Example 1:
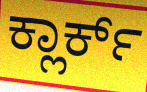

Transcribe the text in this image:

ಕ್ಲಾರ್ಕ್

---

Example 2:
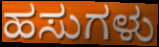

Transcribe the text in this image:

ಹಸುಗಳು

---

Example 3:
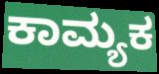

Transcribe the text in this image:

ಕಾಮ್ಯಕ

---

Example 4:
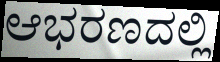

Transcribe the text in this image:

ಆಭರಣದಲ್ಲಿ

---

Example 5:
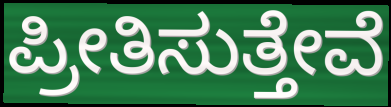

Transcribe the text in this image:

ಪ್ರೀತಿಸುತ್ತೇವೆ